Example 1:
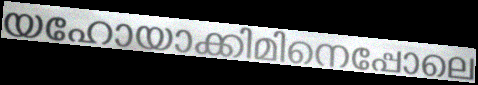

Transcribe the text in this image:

യഹോയാക്കിമിനെപ്പോലെ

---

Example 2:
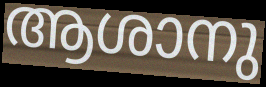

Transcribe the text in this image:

ആശാനു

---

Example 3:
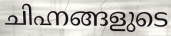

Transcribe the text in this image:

ചിഹ്നങ്ങളുടെ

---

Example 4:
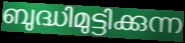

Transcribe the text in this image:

ബുദ്ധിമുട്ടിക്കുന്ന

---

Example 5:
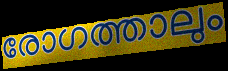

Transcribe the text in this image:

രോഗത്താലും